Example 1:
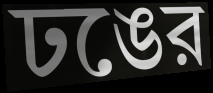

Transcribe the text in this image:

ঢঙের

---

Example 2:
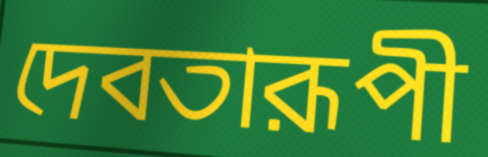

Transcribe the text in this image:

দেবতারূপী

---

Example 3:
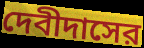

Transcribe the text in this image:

দেবীদাসের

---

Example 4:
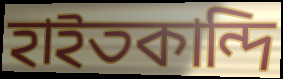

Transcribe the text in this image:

হাইতকান্দি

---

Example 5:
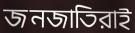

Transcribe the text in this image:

জনজাতিরাই